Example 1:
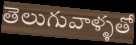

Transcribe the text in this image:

తెలుగువాళ్ళతో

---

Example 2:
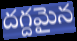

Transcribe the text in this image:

దగ్దమైన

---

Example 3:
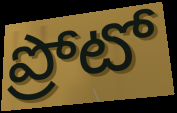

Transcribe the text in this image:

ప్రోటో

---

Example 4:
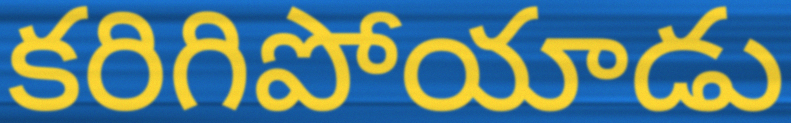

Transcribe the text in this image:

కరిగిపోయాడు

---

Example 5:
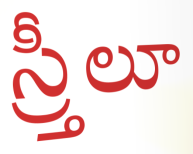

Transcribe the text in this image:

స్ర్తీలూ